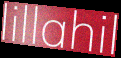
lillahil